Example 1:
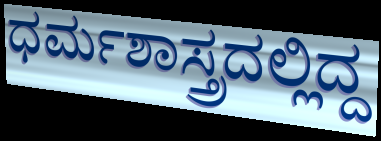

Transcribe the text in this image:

ಧರ್ಮಶಾಸ್ತ್ರದಲ್ಲಿದ್ದ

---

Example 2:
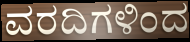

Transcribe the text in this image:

ವರದಿಗಳಿಂದ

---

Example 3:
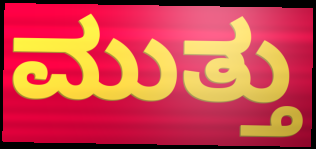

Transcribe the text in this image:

ಮುತ್ತು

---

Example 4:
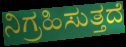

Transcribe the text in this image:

ನಿಗ್ರಹಿಸುತ್ತದೆ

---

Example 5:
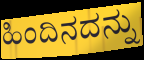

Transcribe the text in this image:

ಹಿಂದಿನದನ್ನು